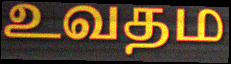
உவதம